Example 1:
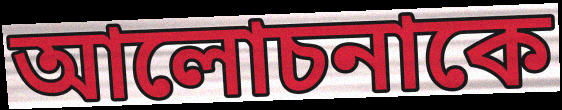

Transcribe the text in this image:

আলোচনাকে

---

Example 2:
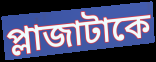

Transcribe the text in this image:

প্লাজাটাকে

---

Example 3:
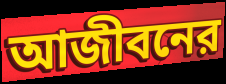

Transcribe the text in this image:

আজীবনের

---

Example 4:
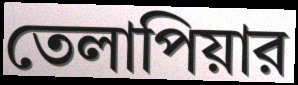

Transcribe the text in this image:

তেলাপিয়ার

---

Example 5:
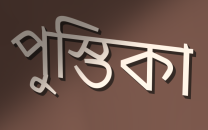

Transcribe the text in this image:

পুস্তিকা